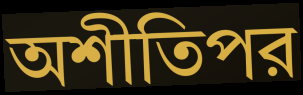
অশীতিপর